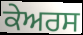
ਕੇਅਰਸ